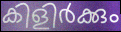
കിളിർക്കും